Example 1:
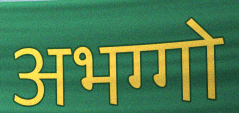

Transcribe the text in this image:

अभग्गो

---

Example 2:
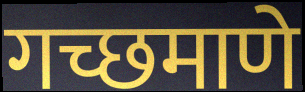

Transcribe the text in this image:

गच्छमाणे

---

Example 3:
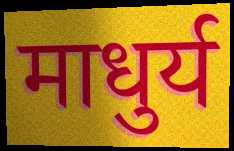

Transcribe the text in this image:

माधुर्य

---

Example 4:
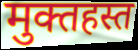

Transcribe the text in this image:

मुक्तहस्त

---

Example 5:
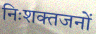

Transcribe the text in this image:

निःशक्तजनों